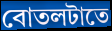
বোতলটাতে